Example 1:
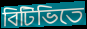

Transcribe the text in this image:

বিটিভিতে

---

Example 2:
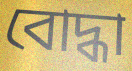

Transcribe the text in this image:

বোদ্ধা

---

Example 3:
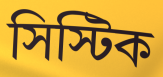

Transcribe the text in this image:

সিস্টিক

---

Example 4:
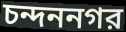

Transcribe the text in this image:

চন্দননগর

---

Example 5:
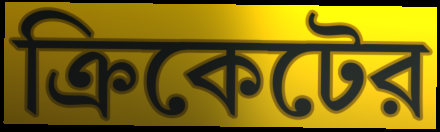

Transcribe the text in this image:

ক্রিকেটের